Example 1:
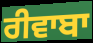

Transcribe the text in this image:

ਰੀਵਾਬਾ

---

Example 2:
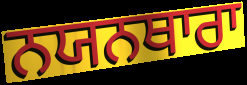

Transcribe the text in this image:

ਨਯਨਥਾਰਾ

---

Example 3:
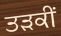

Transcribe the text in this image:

ਤੜਕੀਂ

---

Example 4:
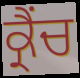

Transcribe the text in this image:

ਕ੍ਰੈਂਚ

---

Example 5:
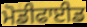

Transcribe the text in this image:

ਮੋਡੀਫਾਈਡ